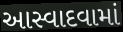
આસ્વાદવામાં